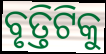
ବୃତ୍ତିଟିକୁ